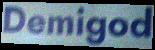
Demigod